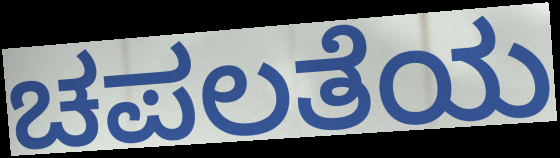
ಚಪಲತೆಯ